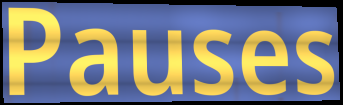
Pauses